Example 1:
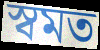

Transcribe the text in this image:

স্বমত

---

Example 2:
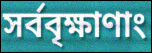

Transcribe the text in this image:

সর্ববৃক্ষাণাং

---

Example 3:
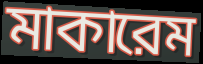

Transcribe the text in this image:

মাকারেম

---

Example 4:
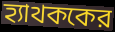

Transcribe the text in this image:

হ্যাথককের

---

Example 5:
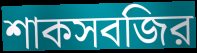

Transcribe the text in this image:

শাকসবজির